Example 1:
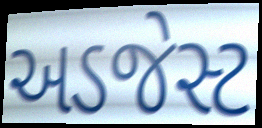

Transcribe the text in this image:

અડજેસ્ટ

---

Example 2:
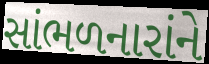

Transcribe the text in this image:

સાંભળનારાંને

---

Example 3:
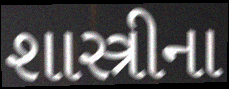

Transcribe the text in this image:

શાસ્ત્રીના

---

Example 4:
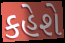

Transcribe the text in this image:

કહેશે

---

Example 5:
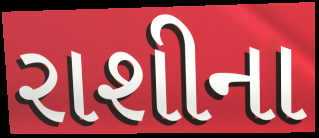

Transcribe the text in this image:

રાશીના